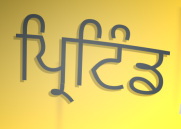
ਪ੍ਰਿਟਿੰਡ